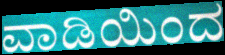
ವಾಡಿಯಿಂದ